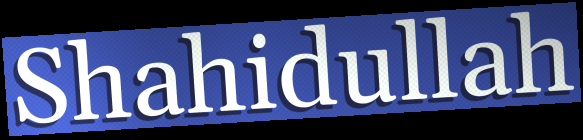
Shahidullah